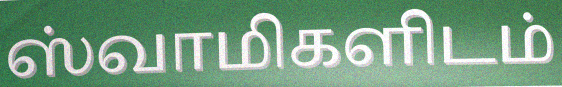
ஸ்வாமிகளிடம்